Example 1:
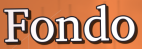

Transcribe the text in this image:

Fondo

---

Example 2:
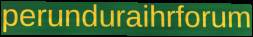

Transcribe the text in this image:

perunduraihrforum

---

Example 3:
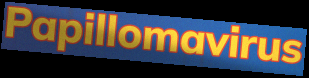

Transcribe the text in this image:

Papillomavirus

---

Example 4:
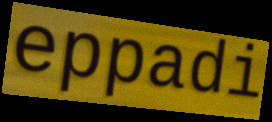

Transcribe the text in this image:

eppadi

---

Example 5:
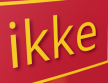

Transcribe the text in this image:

ikke